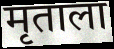
मृताला